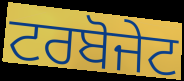
ਟਰਬੋਜੇਟ